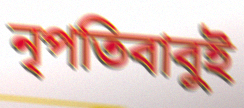
নৃপতিবাবুই